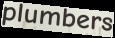
plumbers